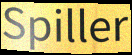
Spiller